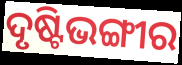
ଦୃଷ୍ଟିଭଙ୍ଗୀର